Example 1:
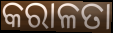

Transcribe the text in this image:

କରାଳତା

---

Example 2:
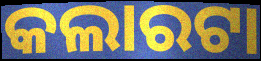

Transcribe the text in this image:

କଲାରଟା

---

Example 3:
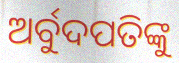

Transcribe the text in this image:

ଅର୍ବୁଦପତିଙ୍କୁ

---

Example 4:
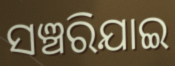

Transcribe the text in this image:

ସଞ୍ଚରିଯାଇ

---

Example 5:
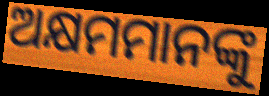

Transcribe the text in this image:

ଅକ୍ଷମମାନଙ୍କୁ